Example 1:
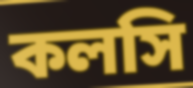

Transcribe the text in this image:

কলসি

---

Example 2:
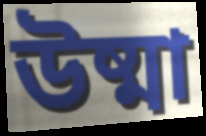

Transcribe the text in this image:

উষ্মা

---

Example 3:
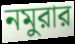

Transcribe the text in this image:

নমুরার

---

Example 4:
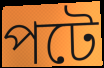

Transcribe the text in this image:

পটে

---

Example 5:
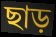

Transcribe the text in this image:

ছাড়